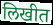
लिखीत